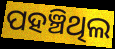
ପହଞ୍ଚିଥିଲ